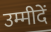
उम्‍मीदें